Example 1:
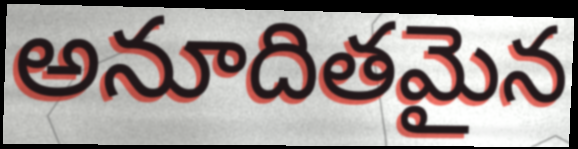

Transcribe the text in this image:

అనూదితమైన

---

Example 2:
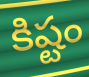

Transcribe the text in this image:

కిష్టం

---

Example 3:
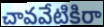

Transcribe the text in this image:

చావవేటికిరా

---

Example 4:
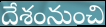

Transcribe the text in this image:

దేశంనుంచి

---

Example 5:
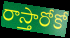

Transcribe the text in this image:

రాస్తారోకో